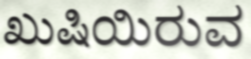
ಖುಷಿಯಿರುವ